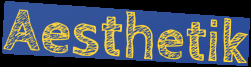
Aesthetik